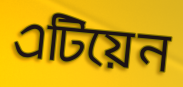
এটিয়েন